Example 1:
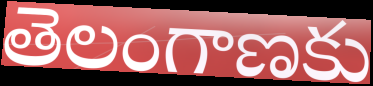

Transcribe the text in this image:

తెలంగాణకు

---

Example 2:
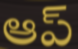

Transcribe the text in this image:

ఆప్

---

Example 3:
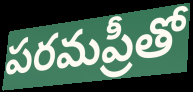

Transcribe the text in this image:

పరమప్రీతో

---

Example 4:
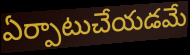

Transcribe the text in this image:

ఏర్పాటుచేయడమే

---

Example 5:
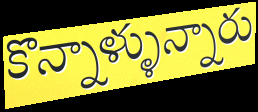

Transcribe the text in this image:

కొన్నాళ్ళున్నారు